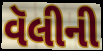
વૅલીની